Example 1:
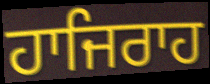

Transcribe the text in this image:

ਹਾਜਿਰਾਹ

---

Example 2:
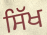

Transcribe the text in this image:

ਸਿੱਖ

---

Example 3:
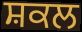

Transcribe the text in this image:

ਸ਼ਕਲ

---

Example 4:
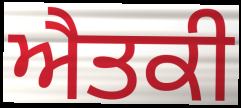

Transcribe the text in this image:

ਐਤਕੀ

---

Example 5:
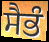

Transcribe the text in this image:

ਸੈਭੰ